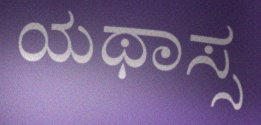
ಯಥಾಸ್ಸ